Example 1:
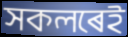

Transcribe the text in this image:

সকলৰেই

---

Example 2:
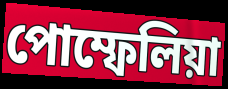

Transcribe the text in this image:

পোম্ফেলিয়া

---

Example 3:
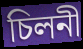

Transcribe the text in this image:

চিলনী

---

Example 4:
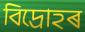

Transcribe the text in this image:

বিদ্ৰোহৰ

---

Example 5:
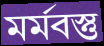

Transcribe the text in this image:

মৰ্মবস্তু